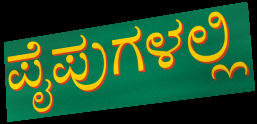
ಪೈಪುಗಳಲ್ಲಿ